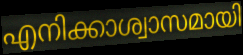
എനിക്കാശ്വാസമായി